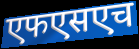
एफएसएच